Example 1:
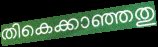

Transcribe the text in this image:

തികെക്കാഞ്ഞതു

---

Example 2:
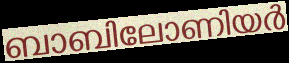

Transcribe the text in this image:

ബാബിലോണിയർ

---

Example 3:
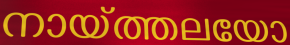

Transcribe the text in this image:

നായ്ത്തലയോ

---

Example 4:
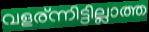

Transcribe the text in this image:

വളര്ന്നിട്ടില്ലാത്ത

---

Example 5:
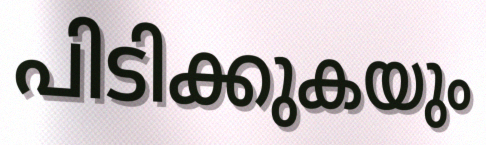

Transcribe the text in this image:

പിടിക്കുകയും